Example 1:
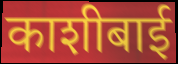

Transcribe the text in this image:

काशीबाई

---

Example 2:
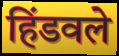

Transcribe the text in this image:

हिंडवले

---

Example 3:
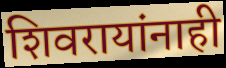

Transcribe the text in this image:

शिवरायांनाही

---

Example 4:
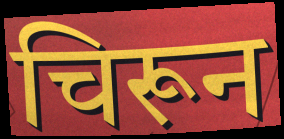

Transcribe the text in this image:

चिरून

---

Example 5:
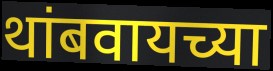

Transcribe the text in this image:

थांबवायच्या